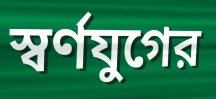
স্বর্ণযুগের